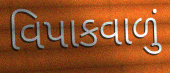
વિપાકવાળું